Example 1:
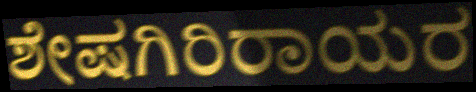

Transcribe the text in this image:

ಶೇಷಗಿರಿರಾಯರ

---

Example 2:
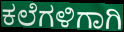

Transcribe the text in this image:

ಕಲೆಗಳಿಗಾಗಿ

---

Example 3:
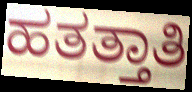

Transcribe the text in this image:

ಹತತ್ತಾತಿ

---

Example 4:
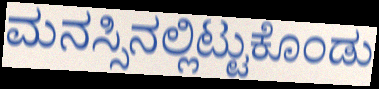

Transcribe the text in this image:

ಮನಸ್ಸಿನಲ್ಲಿಟ್ಟುಕೊಂಡು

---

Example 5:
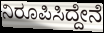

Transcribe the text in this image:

ನಿರೂಪಿಸಿದ್ದೇನೆ